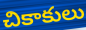
చికాకులు